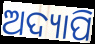
ଅଦ୍ୟାପି